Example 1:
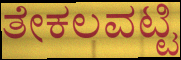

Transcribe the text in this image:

ತೇಕಲವಟ್ಟಿ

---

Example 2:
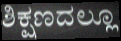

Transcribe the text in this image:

ಶಿಕ್ಷಣದಲ್ಲೂ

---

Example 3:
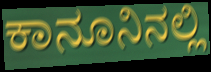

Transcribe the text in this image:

ಕಾನೂನಿನಲ್ಲಿ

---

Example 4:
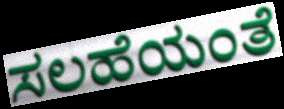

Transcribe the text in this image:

ಸಲಹೆಯಂತೆ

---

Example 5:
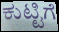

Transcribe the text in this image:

ಕುಟ್ಟಿಗೆ